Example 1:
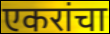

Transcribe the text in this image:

एकरांचा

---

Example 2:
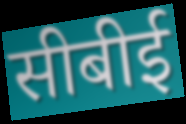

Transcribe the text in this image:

सीबीई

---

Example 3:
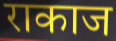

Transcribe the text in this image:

राकाज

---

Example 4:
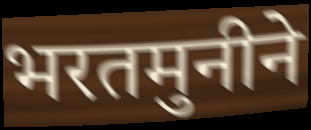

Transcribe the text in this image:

भरतमुनीने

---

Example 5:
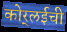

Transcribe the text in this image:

कोर्लईची